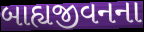
બાહ્યજીવનના